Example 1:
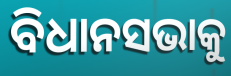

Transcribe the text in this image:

ବିଧାନସଭାକୁ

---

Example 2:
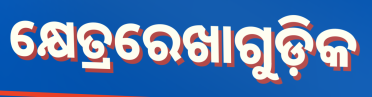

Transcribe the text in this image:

କ୍ଷେତ୍ରରେଖାଗୁଡ଼ିକ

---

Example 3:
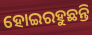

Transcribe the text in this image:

ହୋଇରହୁଛନ୍ତି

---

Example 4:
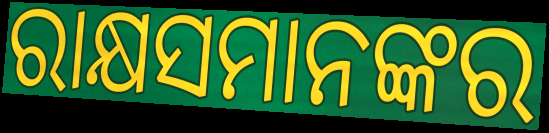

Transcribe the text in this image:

ରାକ୍ଷସମାନଙ୍କର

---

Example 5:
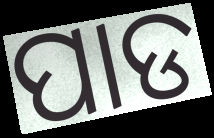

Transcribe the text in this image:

ପାଡ